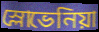
স্লোভেনিয়া